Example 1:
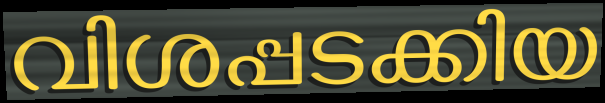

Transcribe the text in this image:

വിശപ്പടക്കിയ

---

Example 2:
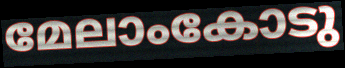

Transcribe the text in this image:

മേലാംകോടു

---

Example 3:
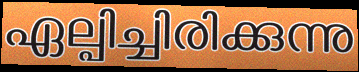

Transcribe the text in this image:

ഏല്പിച്ചിരിക്കുന്നു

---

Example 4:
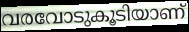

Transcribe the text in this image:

വരവോടുകൂടിയാണ്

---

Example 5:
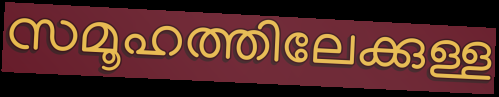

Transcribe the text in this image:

സമൂഹത്തിലേക്കുള്ള